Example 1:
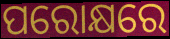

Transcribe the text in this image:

ପରୋକ୍ଷରେ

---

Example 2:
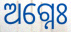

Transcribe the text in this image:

ଅଗ୍ନେଃ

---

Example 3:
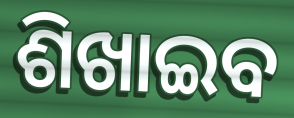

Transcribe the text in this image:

ଶିଖାଇବ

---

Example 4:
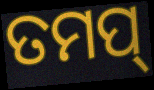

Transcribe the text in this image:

ତମପ୍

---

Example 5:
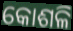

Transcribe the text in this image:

କୋଶଳି